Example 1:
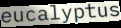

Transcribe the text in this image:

eucalyptus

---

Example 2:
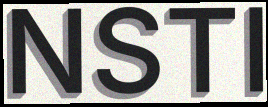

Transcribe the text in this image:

NSTI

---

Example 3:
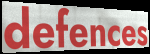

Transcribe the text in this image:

defences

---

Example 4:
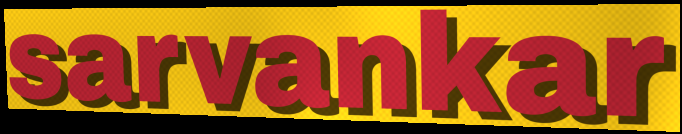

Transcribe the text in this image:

sarvankar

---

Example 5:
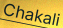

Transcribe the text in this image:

Chakali